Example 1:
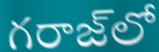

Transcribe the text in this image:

గరాజ్‌లో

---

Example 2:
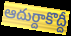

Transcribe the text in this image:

ఆదుర్దాకొద్దీ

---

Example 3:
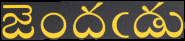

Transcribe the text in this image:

జెందఁడు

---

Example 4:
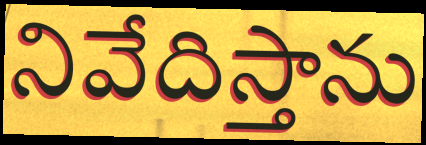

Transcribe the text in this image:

నివేదిస్తాను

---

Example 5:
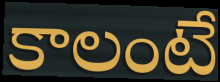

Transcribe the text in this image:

కాలంటే